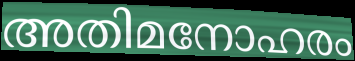
അതിമനോഹരം